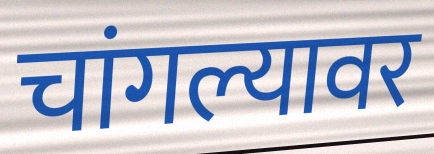
चांगल्यावर